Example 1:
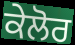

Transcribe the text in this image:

ਕੇਲੋਰ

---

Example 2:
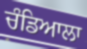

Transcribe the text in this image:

ਚੰਡਿਆਲਾ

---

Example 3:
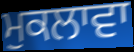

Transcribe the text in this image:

ਮੁਕਲਾਵਾ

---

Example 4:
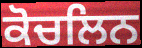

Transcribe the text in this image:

ਕੋਚਲਿਨ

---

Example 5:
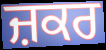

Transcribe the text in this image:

ਜ਼ਕਰ